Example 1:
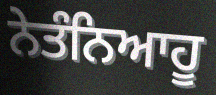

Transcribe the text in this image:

ਨੇਤੰਨਿਆਹੂ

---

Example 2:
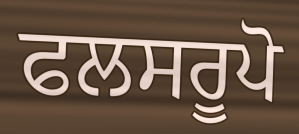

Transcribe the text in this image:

ਫਲਸਰੂਪੋ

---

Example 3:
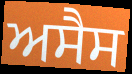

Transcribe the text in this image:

ਅਸੈਸ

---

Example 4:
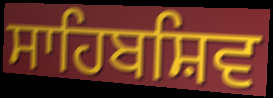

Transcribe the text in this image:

ਸਾਹਿਬਸ਼ਿਵ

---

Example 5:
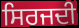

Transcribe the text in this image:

ਸਿਰਜਦੀ